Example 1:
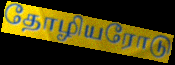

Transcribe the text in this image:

தோழியரோடு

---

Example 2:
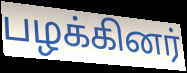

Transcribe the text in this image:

பழக்கினர்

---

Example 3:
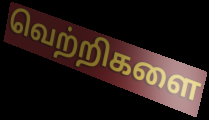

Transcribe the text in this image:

வெற்றிகளை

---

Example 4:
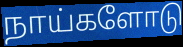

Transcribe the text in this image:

நாய்களோடு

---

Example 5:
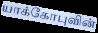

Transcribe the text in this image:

யாக்கோபுவின்